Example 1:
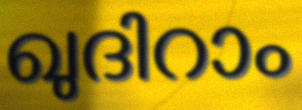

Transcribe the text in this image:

ഖുദിറാം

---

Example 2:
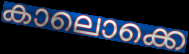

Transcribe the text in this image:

കാലൊക്കെ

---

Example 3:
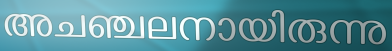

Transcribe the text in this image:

അചഞ്ചലനായിരുന്നു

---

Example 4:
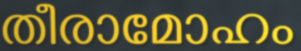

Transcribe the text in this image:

തീരാമോഹം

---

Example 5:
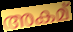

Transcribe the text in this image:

അകമ്